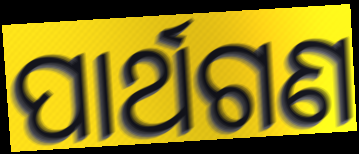
ପାର୍ଥଗଣ